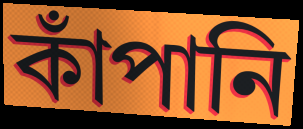
কাঁপানি